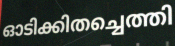
ഓടിക്കിതച്ചെത്തി